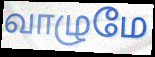
வாழுமே